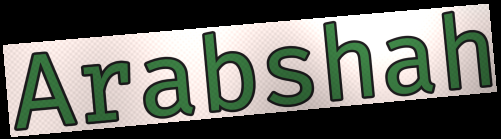
Arabshah